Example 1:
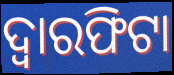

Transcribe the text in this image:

ଦ୍ୱାରଫିଟା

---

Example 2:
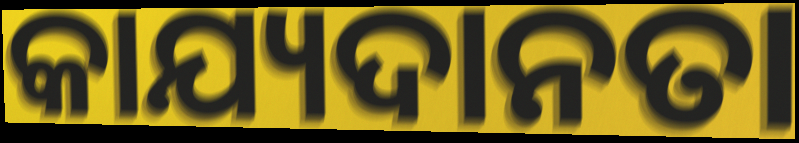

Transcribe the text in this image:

କାଯ୍ୟଦାନତା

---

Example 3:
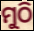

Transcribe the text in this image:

ମୁଠି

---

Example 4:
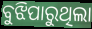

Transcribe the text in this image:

ବୁଝିପାରୁଥିଲା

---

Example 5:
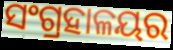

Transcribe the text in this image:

ସଂଗ୍ରହାଳୟର